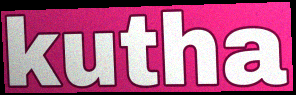
kutha